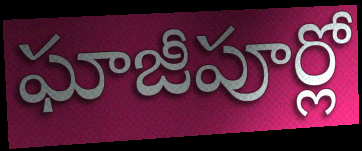
ఘాజీపూర్లో